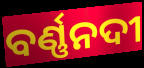
ବର୍ଣ୍ଣନଦୀ